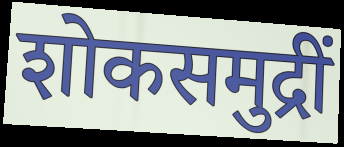
शोकसमुद्रीं